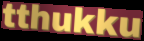
tthukku